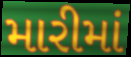
મારીમાં